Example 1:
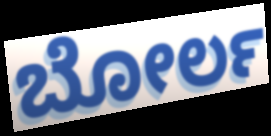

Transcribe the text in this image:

ಬೋರ್ಲ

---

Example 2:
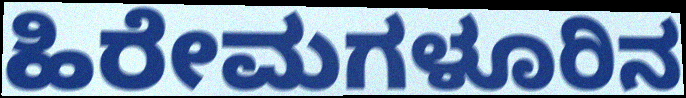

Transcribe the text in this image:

ಹಿರೇಮಗಳೂರಿನ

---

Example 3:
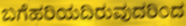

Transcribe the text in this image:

ಬಗೆಹರಿಯದಿರುವುದರಿಂದ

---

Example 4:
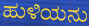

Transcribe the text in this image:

ಹುಳಿಯನು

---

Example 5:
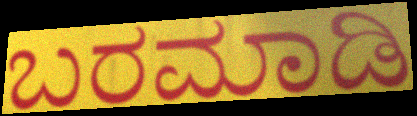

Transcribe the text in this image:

ಬರಮಾಡಿ